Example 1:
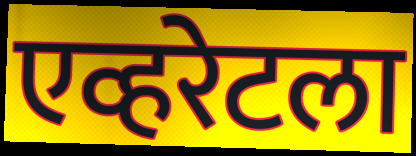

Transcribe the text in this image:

एव्हरेटला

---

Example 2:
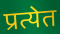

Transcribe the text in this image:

प्रत्येत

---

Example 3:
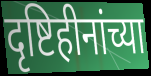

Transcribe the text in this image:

दृष्टिहीनांच्या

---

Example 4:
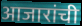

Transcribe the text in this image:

आजारांची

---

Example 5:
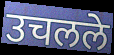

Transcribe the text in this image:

उचलले